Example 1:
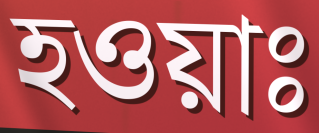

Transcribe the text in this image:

হওয়াঃ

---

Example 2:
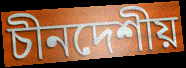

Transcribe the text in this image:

চীনদেশীয়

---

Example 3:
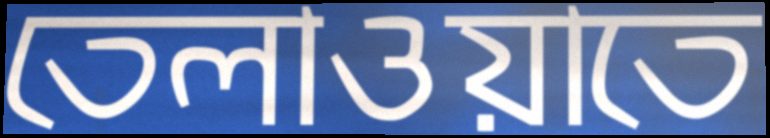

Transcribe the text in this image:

তেলাওয়াতে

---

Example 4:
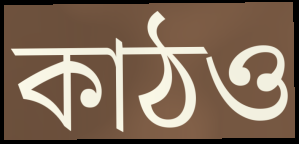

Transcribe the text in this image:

কাঠও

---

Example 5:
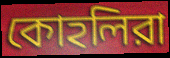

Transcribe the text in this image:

কোহলিরা